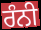
ਰੰਨੀ